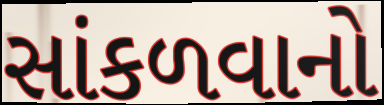
સાંકળવાનો